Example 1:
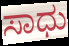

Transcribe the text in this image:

ಸಾಧು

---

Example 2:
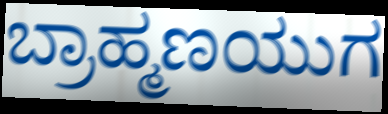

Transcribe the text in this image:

ಬ್ರಾಹ್ಮಣಯುಗ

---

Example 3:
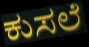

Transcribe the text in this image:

ಕುಸಲೆ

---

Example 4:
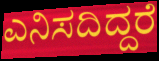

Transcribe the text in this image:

ಎನಿಸದಿದ್ದರೆ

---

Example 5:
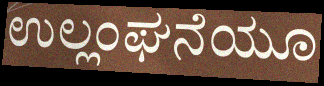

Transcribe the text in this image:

ಉಲ್ಲಂಘನೆಯೂ